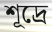
শূদ্রে